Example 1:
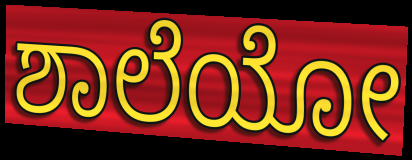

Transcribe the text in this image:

ಶಾಲೆಯೋ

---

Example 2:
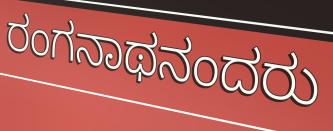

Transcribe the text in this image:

ರಂಗನಾಥನಂದರು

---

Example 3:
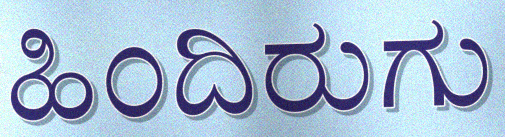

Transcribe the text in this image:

ಹಿಂದಿರುಗು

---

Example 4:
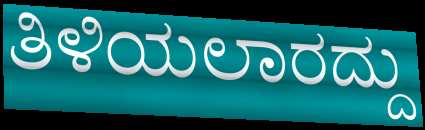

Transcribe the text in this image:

ತಿಳಿಯಲಾರದ್ದು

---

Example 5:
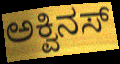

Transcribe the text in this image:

ಅಕ್ವಿನಸ್